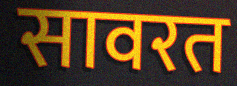
सावरत